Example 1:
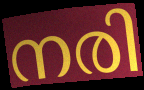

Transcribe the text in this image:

നരി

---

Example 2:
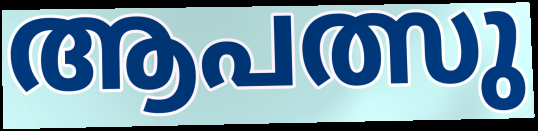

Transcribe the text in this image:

ആപത്സു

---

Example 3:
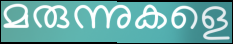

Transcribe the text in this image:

മരുന്നുകളെ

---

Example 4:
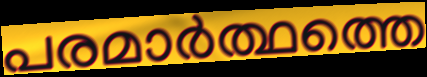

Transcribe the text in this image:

പരമാർത്ഥത്തെ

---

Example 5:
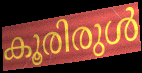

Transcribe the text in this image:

കൂരിരുൾ